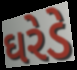
ઘરેડે